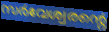
സർവേശ്വരന്റെ